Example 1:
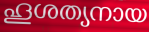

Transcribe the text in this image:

ഹൂശത്യനായ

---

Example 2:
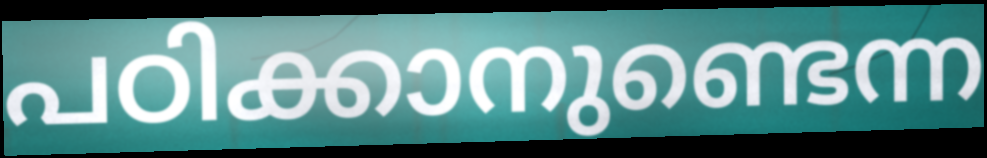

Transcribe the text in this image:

പഠിക്കാനുണ്ടെന്ന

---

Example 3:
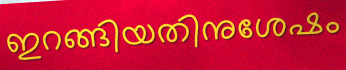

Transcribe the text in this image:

ഇറങ്ങിയതിനുശേഷം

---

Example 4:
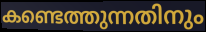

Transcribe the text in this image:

കണ്ടെത്തുന്നതിനും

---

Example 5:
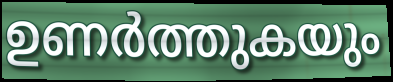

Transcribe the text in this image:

ഉണർത്തുകയും